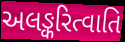
અલઙ્કરિત્વાતિ